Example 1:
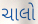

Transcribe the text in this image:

ચાલો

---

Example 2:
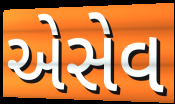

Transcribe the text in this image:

એસેવ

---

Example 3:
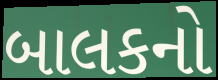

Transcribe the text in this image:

બાલકનો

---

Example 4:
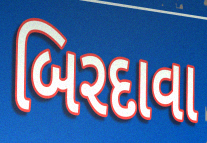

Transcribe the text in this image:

બિરદાવા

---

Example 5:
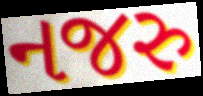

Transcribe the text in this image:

નજરુ